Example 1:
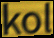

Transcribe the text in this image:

kol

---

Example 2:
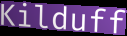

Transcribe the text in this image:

Kilduff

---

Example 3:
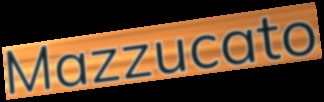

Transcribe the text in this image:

Mazzucato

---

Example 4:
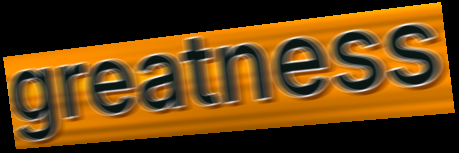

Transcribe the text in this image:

greatness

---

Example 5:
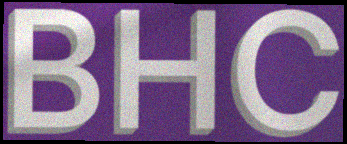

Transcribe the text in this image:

BHC